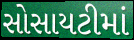
સોસાયટીમાં